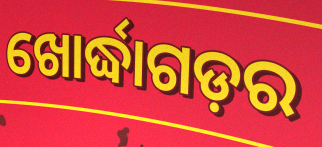
ଖୋର୍ଦ୍ଧାଗଡ଼ର